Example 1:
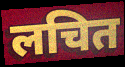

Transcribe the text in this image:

लचित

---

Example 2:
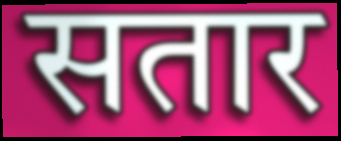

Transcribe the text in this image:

सतार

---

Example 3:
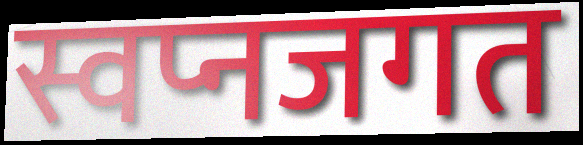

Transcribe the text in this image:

स्वप्नजगत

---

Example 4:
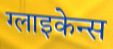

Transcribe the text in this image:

ग्लाइकेन्स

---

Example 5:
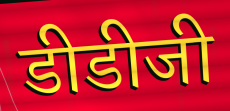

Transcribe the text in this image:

डीडीजी